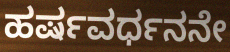
ಹರ್ಷವರ್ಧನನೇ